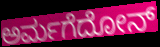
ಅರ್ಮಗೆದೋನ್